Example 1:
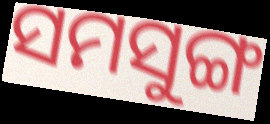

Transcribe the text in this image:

ସମସୁଙ୍ଗ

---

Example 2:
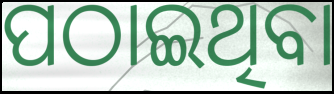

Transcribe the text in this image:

ପଠାଇଥିବା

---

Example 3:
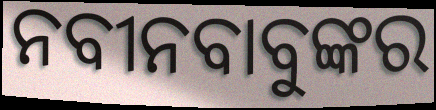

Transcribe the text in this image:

ନବୀନବାବୁଙ୍କର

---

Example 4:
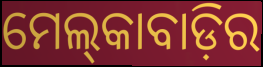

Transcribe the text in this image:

ମେଲ୍‌କାବାଡ଼ିର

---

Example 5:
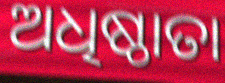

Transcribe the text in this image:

ଅଧିଷ୍ଠାତା